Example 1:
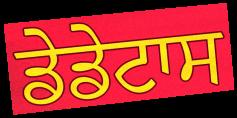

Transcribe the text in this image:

ਡੇਡੇਟਾਸ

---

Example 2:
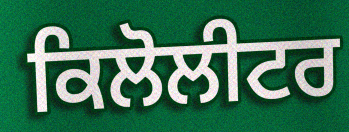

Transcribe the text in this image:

ਕਿਲੋਲੀਟਰ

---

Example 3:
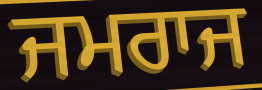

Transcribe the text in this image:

ਜਮਰਾਜ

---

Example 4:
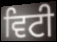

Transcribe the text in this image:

ਵਿਟੀ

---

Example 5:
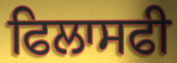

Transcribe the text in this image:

ਫਿਲਾਸਫੀ